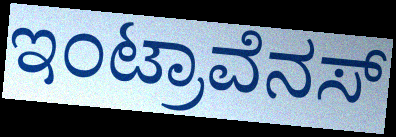
ಇಂಟ್ರಾವೆನಸ್